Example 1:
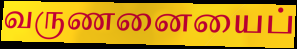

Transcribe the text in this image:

வருணனையைப்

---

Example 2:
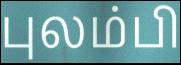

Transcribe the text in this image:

புலம்பி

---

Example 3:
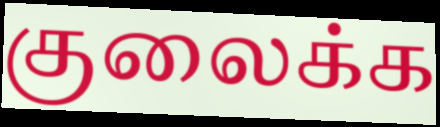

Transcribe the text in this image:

குலைக்க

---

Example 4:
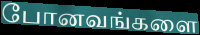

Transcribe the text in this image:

போனவங்களை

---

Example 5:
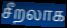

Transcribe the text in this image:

சீறலாக